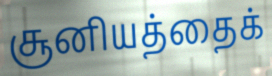
சூனியத்தைக்